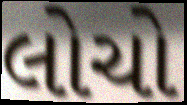
લોચો